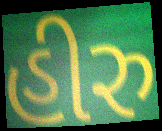
હીરુ